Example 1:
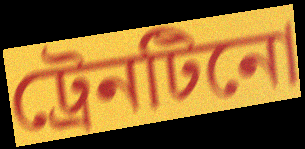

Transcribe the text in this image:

ট্রেনটিনো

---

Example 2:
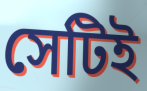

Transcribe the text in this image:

সেটিই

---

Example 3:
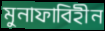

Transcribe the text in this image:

মুনাফাবিহীন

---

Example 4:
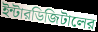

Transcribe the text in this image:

ইন্টারডিজিটালের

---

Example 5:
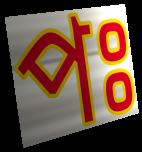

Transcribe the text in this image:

পঃ